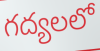
గద్యలలో